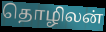
தொழிலன்